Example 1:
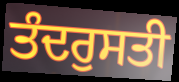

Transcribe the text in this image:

ਤੰਦਰੁਸਤੀ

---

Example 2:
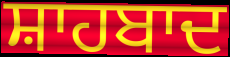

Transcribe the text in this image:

ਸ਼ਾਹਬਾਦ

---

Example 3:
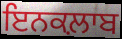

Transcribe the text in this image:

ਇਨਕ਼ਲਾਬ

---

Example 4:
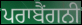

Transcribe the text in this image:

ਪਰਾਬੈਂਗਨੀ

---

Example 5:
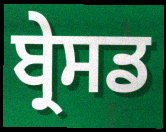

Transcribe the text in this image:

ਬ੍ਰੇਸਡ